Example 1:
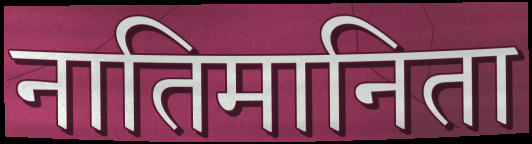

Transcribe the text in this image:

नातिमानिता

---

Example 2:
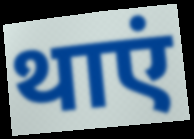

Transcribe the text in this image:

थाएं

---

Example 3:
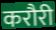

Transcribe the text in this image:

करौरी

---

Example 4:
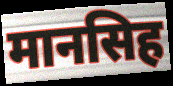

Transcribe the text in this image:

मानसिह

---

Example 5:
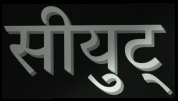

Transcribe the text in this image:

सीयुट्